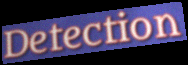
Detection